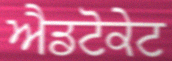
ਐਡਟੋਕੇਟ